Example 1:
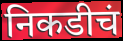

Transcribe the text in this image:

निकडीचं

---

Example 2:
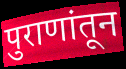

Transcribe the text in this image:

पुराणांतून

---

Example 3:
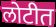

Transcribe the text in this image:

लोटीत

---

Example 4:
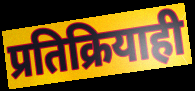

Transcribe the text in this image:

प्रतिक्रियाही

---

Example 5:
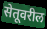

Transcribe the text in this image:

सेतूवरील